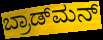
ಬ್ರಾಡ್‌ಮನ್